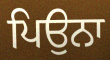
ਪਿਉਨਾ